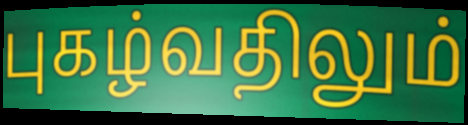
புகழ்வதிலும்